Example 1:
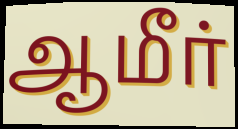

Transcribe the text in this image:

ஆமீர்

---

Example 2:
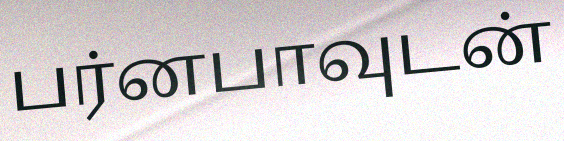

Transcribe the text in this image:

பர்னபாவுடன்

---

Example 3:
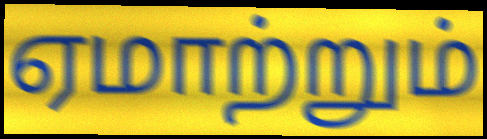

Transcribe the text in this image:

ஏமாற்றும்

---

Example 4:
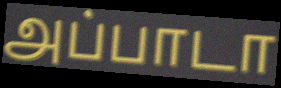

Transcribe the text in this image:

அப்பாடா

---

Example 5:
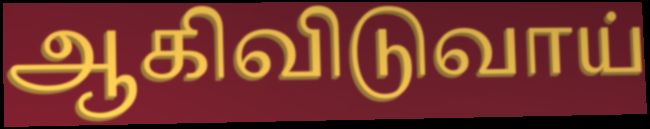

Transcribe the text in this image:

ஆகிவிடுவாய்